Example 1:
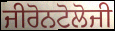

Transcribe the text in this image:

ਜੀਰੋਨਟੋਲੋਜੀ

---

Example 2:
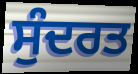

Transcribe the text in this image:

ਸੁੰਦਰਤ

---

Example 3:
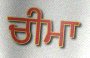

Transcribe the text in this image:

ਚੀਮਾ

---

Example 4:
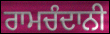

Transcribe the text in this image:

ਰਾਮਚੰਦਾਨੀ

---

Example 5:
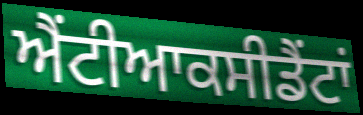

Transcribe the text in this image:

ਐਂਟੀਆਕਸੀਡੈਂਟਾਂ